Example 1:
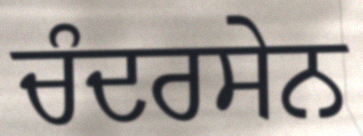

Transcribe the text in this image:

ਚੰਦਰਸੇਨ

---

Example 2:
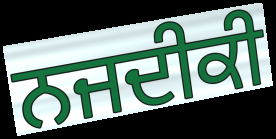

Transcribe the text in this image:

ਨਜਦੀਕੀ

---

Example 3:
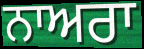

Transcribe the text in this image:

ਨਾਅਰਾ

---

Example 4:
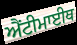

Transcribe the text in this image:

ਐਂਟੀਮਾਈਥ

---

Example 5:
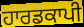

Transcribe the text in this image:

ਹਾਰਡਕਾਪੀ